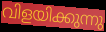
വിളയിക്കുന്നു